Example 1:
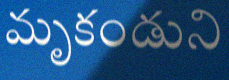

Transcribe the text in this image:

మృకండుని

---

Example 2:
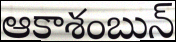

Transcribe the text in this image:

ఆకాశంబున్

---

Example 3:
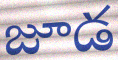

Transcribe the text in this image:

జూడ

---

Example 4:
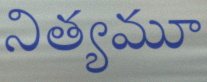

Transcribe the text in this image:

నిత్యమూ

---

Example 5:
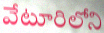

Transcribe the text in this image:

వేటూరిలోని